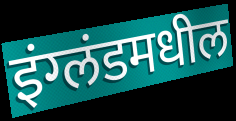
इंग्‍लंडमधील